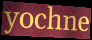
yochne